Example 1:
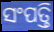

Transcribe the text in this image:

ସଂପତ୍ତି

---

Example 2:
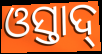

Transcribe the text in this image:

ଓସ୍ତାଦ୍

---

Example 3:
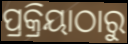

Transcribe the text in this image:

ପ୍ରକ୍ରିୟାଠାରୁ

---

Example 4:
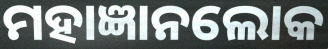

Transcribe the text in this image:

ମହାଜ୍ଞାନଲୋକ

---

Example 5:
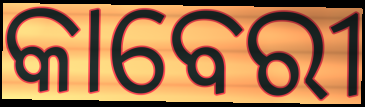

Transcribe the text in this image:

କାବେରୀ